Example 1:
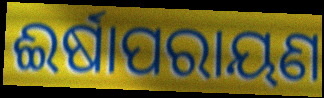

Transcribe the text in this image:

ଈର୍ଷାପରାୟଣ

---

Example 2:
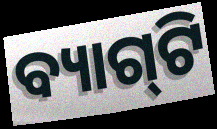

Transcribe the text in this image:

ବ୍ୟାଗ୍‌ଟି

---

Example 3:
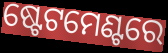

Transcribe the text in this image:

ଷ୍ଟେଟମେଣ୍ଟରେ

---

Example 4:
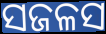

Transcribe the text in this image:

ସଜଳସ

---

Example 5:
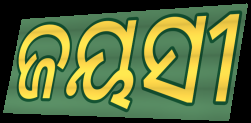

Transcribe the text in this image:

ଜୟସୀ